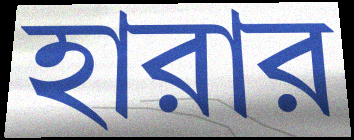
হারার